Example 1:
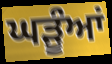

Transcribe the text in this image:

ਘੜੂੰਆਂ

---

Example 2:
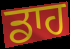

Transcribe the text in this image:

ਡਾਹ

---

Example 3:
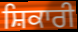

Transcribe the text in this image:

ਸ਼ਿਕਾਰੀ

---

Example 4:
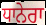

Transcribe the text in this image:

ਧਾਨੇਰਾ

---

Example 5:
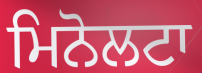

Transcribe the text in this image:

ਮਿਨੋਲਟਾ